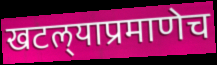
खटल्याप्रमाणेच